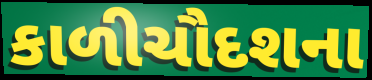
કાળીચૌદશના